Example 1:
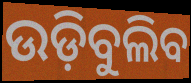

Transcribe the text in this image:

ଉଡ଼ିବୁଲିବ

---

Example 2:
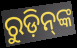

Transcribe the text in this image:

ରୁଡ଼ିନ୍‌ଙ୍କ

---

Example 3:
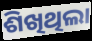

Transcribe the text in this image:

ଶିଖିଥିଲା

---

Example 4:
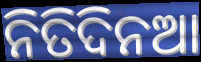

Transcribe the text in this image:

ନିତିଦିନଆ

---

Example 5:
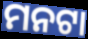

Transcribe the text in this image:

ମନଟା